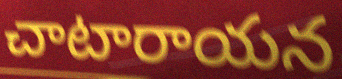
చాటారాయన